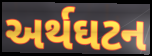
અર્થઘટન